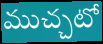
ముచ్చటో